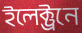
ইলেক্ট্ৰনে